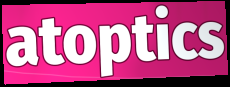
atoptics